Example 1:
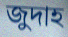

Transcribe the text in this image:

জুদাহ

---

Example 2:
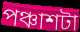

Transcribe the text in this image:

পঞ্চাশটা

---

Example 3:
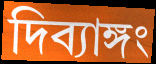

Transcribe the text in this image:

দিব্যাঙ্গং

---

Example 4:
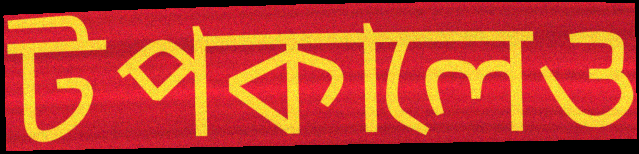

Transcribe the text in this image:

টপকালেও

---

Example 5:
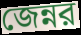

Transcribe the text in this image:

জেন্নর